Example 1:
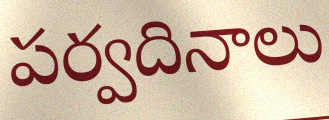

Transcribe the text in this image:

పర్వదినాలు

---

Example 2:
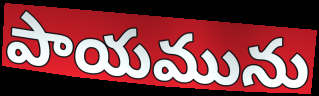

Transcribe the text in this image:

పాయమును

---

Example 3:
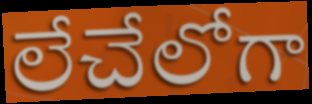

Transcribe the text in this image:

లేచేలోగా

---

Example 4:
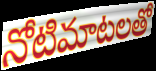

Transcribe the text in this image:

నోటిమాటలతో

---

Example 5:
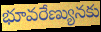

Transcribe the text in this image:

భూవరేణ్యునకు